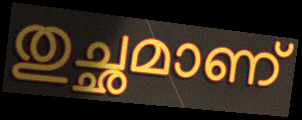
തുച്ഛമാണ്